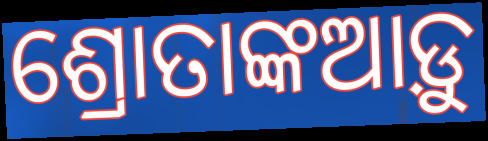
ଶ୍ରୋତାଙ୍କଆଡ଼ୁ